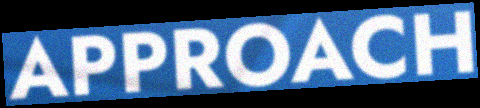
APPROACH